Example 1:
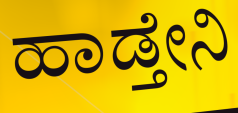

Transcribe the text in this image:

ಹಾಡ್ತೇನಿ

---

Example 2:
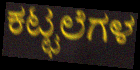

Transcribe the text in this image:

ಕಟ್ಟಲೆಗಳ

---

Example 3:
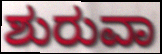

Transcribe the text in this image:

ಶುರುವಾ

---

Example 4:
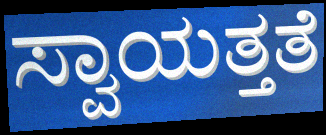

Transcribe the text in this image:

ಸ್ವಾಯತ್ತತೆ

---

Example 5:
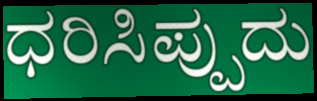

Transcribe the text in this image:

ಧರಿಸಿಪ್ಪುದು